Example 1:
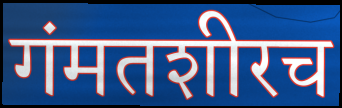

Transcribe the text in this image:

गंमतशीरच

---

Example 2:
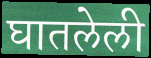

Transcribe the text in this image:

घातलेली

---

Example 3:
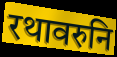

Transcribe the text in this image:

रथावरुनि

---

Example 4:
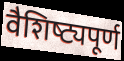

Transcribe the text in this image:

वैशिष्ट्यपूर्ण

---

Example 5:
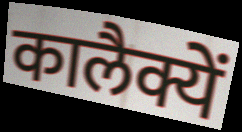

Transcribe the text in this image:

कालैक्यें